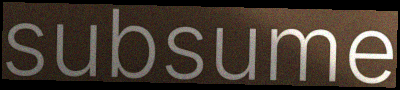
subsume